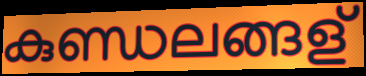
കുണ്ഡലങ്ങള്